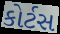
કોર્ટસ